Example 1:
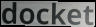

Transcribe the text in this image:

docket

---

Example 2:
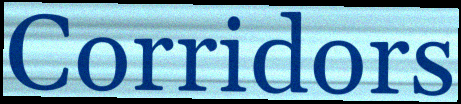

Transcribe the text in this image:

Corridors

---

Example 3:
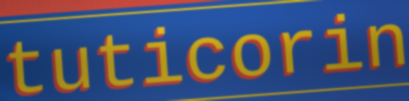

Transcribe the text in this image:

tuticorin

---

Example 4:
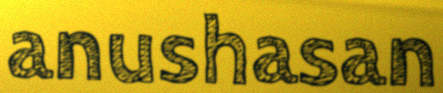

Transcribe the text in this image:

anushasan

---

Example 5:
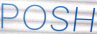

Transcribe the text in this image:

POSH